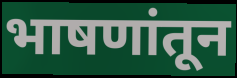
भाषणांतून